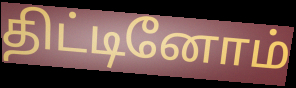
திட்டினோம்